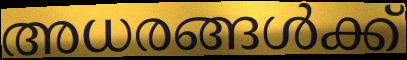
അധരങ്ങൾക്ക്